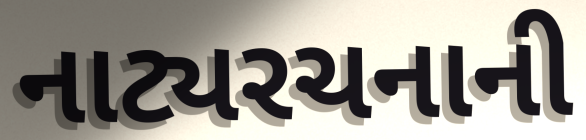
નાટ્યરચનાની